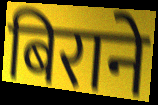
बिराने